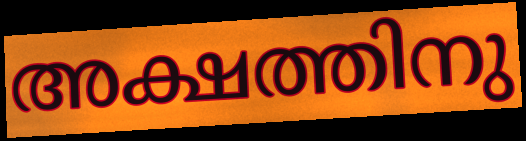
അക്ഷത്തിനു